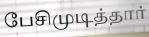
பேசிமுடித்தார்